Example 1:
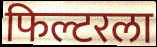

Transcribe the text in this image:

फिल्टरला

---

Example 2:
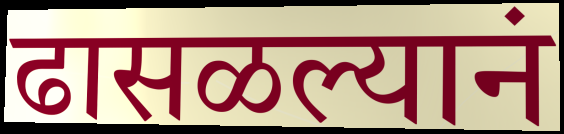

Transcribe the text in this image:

ढासळल्यानं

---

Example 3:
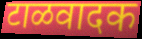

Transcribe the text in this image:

टाळवादक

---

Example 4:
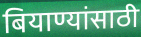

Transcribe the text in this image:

बियाण्यांसाठी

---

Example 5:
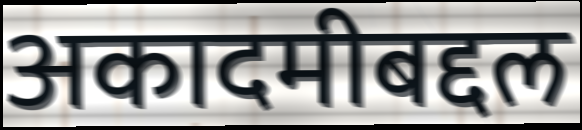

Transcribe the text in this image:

अकादमीबद्दल